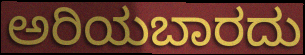
ಅರಿಯಬಾರದು